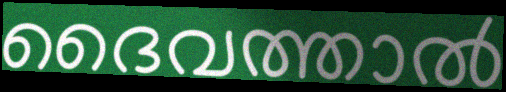
ദൈവത്താൽ